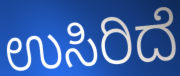
ಉಸಿರಿದೆ